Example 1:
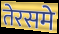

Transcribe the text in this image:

तेरसमे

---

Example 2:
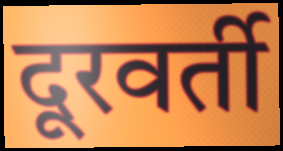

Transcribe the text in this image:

दूरवर्ती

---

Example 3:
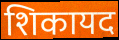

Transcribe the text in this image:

शिकायद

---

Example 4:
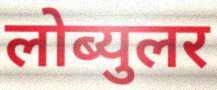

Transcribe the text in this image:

लोब्युलर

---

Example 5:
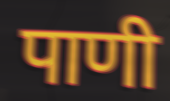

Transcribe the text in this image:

पाणी